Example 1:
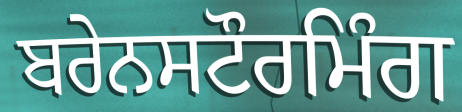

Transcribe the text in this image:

ਬਰੇਨਸਟੌਰਮਿੰਗ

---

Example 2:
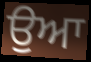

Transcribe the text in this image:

ਉਆ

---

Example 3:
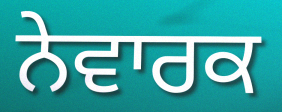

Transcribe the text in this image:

ਨੇਵਾਰਕ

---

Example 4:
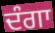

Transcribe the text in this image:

ਦੰਗਾ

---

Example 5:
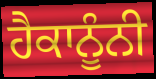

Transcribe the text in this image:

ਹੈਕਾਨੂੰਨੀ